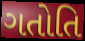
ગતોતિ